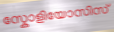
സ്കോളിയോസിസ്